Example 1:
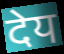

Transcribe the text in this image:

देय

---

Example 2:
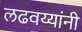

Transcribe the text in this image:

लढवय्यांनी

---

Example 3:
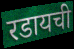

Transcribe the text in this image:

रडायची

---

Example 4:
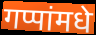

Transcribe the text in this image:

गप्पांमधे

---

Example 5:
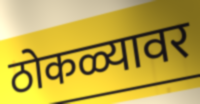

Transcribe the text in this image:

ठोकळ्यावर